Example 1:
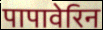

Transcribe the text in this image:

पापावेरिन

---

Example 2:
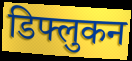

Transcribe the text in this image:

डिफ्लुकन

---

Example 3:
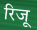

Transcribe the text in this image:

रिजू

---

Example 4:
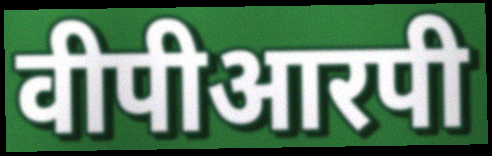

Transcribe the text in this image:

वीपीआरपी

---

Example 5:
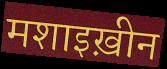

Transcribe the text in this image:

मशाइख़ीन